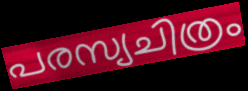
പരസ്യചിത്രം